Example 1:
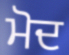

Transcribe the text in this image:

ਮੋਦ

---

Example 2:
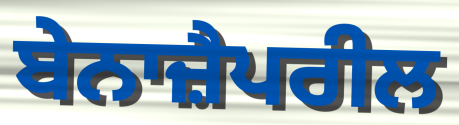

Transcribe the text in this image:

ਬੇਨਾਜ਼ੈਪਰੀਲ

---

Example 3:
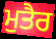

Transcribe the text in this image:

ਮੁਤੈਰ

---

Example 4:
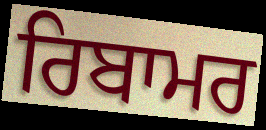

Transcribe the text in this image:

ਰਿਬਾਮਰ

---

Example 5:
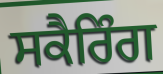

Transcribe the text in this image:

ਸਕੈਰਿੰਗ